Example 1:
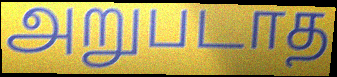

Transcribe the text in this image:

அறுபடாத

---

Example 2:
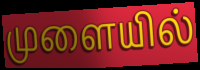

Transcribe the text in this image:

முளையில்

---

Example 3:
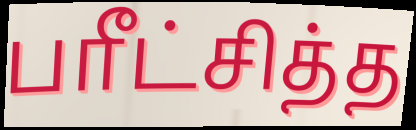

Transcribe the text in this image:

பரீட்சித்த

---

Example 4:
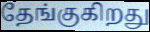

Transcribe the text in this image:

தேங்குகிறது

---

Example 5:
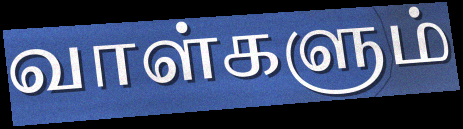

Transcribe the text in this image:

வாள்களும்